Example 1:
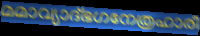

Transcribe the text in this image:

മമാവ്യാദ്ഭഗനേത്രഹാരീ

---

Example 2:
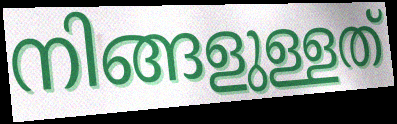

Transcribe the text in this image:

നിങ്ങളുള്ളത്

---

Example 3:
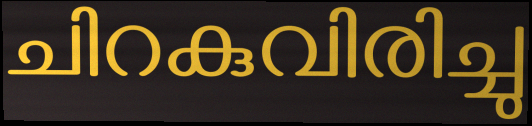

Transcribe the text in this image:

ചിറകുവിരിച്ചു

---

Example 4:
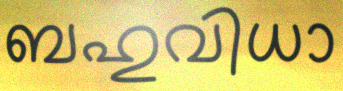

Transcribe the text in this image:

ബഹുവിധാ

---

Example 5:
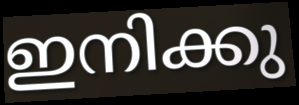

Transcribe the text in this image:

ഇനിക്കു